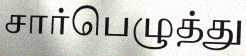
சார்பெழுத்து